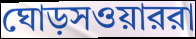
ঘোড়সওয়াররা